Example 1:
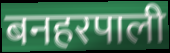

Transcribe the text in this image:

बनहरपाली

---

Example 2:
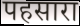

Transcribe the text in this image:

पहसारा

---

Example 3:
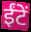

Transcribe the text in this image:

ईंटें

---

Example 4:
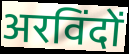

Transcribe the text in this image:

अरविंदों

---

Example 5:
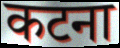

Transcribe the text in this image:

कटना